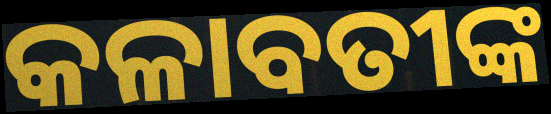
କଳାବତୀଙ୍କ